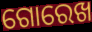
ଗୋରେଖ